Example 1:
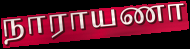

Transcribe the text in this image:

நாராயணா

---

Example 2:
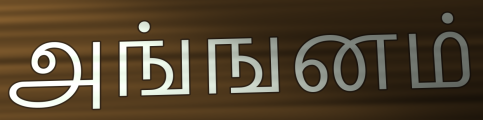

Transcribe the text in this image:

அங்ஙனம்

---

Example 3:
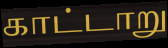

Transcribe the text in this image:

காட்டாறு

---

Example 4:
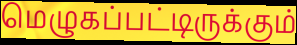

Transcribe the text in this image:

மெழுகப்பட்டிருக்கும்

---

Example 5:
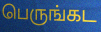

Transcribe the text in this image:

பெருங்கட